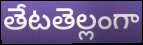
తేటతెల్లంగా